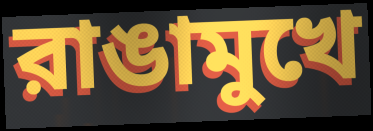
রাঙামুখে